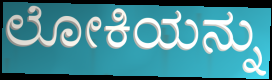
ಲೋಕಿಯನ್ನು